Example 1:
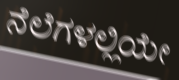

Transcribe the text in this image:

ನೆಲೆಗಳಲ್ಲಿಯೇ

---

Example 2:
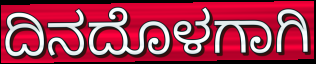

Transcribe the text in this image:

ದಿನದೊಳಗಾಗಿ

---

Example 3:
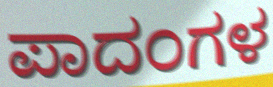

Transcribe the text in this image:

ಪಾದಂಗಳ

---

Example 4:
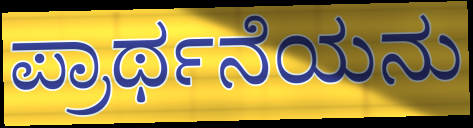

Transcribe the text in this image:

ಪ್ರಾರ್ಥನೆಯನು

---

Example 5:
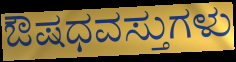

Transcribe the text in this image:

ಔಷಧವಸ್ತುಗಳು